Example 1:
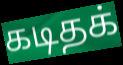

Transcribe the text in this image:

கடிதக்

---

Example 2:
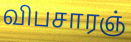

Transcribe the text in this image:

விபசாரஞ்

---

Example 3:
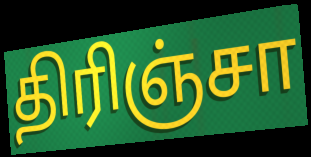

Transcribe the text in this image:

திரிஞ்சா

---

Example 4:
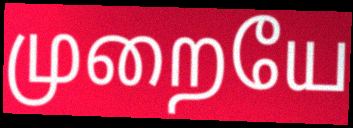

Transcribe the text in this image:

முறையே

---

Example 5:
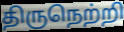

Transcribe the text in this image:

திருநெற்றி